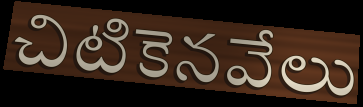
చిటికెనవేలు